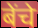
बेंचे